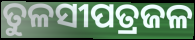
ତୁଳସୀପତ୍ରଜଳ